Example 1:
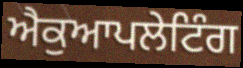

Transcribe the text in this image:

ਐਕੁਆਪਲੇਟਿੰਗ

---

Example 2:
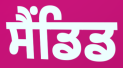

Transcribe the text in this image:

ਸੈਂਡਿਡ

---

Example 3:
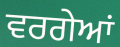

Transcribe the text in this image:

ਵਰਗੇਆਂ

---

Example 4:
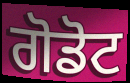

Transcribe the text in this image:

ਗੋਡੋਟ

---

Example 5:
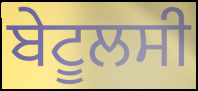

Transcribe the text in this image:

ਬੇਟੂਲਸੀ